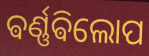
ଵର୍ଣ୍ଣଵିଲୋପ